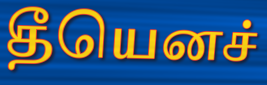
தீயெனச்